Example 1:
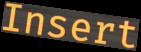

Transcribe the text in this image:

Insert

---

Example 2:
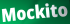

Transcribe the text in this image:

Mockito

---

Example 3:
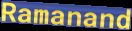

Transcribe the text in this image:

Ramanand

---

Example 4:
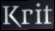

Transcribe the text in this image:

Krit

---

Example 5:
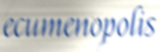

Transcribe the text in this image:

ecumenopolis